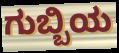
ಗುಬ್ಬಿಯ